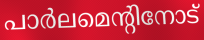
പാർലമെന്റിനോട്